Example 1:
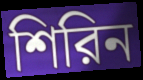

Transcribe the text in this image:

শিরিন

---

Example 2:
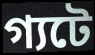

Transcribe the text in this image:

গ্যটে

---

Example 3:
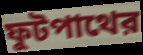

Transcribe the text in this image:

ফুটপাথের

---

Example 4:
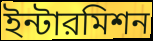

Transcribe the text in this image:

ইন্টারমিশন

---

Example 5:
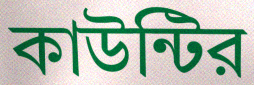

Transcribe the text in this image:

কাউন্টির